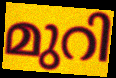
മുറി